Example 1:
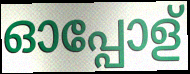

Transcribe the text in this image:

ഓപ്പോള്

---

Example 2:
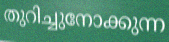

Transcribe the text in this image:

തുറിച്ചുനോക്കുന്ന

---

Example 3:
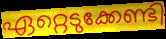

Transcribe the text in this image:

ഏറ്റെടുക്കേണ്ടി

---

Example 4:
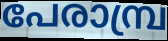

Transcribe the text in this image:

പേരാമ്പ്ര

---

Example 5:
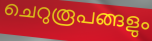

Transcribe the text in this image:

ചെറുരൂപങ്ങളും